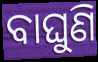
ବାଘୁଣି